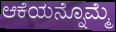
ಆಕೆಯನ್ನೊಮ್ಮೆ